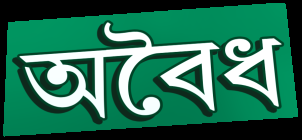
অবৈধ